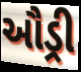
ઔડ્રી